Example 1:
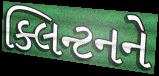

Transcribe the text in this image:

ક્લિન્ટનને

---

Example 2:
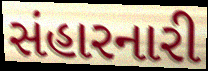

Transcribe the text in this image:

સંહારનારી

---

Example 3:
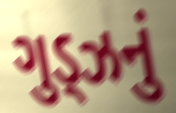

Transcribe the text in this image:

ગુડ્ઝનું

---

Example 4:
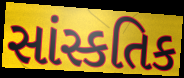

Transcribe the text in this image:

સાંસ્કતિક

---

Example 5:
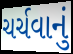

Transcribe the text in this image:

ચર્ચવાનું